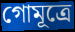
গোমূত্রে